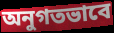
অনুগতভাবে